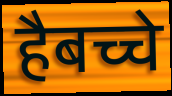
हैबच्चे